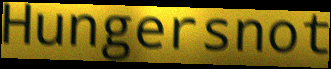
Hungersnot